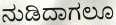
ನುಡಿದಾಗಲೂ